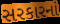
સરકારનાં